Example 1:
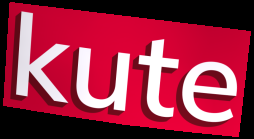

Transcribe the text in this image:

kute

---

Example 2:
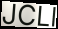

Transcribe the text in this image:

JCLI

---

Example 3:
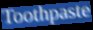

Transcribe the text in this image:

Toothpaste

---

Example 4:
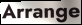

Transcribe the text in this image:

Arrange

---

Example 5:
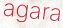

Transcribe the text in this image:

agara